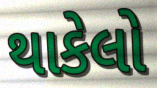
થાકેલો